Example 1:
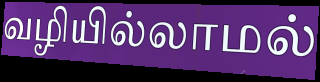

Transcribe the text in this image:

வழியில்லாமல்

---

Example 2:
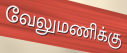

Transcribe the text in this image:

வேலுமணிக்கு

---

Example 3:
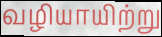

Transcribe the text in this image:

வழியாயிற்று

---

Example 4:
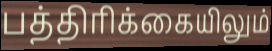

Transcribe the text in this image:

பத்திரிக்கையிலும்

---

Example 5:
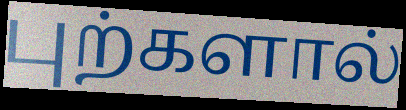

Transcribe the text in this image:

புற்களால்